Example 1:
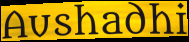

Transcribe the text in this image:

Aushadhi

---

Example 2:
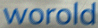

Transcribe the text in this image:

worold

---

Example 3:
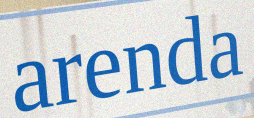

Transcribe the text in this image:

arenda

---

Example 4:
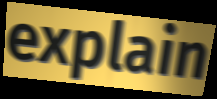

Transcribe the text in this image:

explain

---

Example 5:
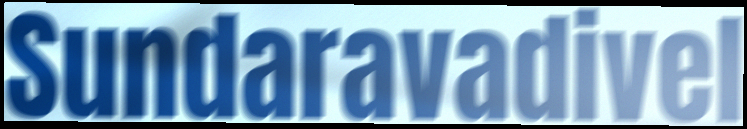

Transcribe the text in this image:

Sundaravadivel